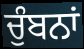
ਚੁੰਬਨਾਂ